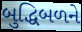
બુદ્ધિબળને